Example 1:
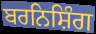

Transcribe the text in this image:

ਬਰਨਿਸ਼ਿੰਗ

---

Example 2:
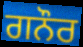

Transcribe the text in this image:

ਗਨੌਰ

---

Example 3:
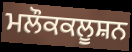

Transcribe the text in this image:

ਮਲੌਕਕਲੂਸ਼ਨ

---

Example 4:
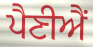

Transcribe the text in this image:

ਪੈਣੀਐਂ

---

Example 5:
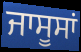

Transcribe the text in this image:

ਜਾਸੂਸਾਂ